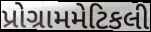
પ્રોગ્રામમેટિકલી